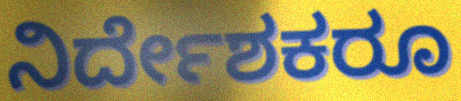
ನಿರ್ದೇಶಕರೂ